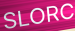
SLORC